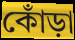
কোঁড়া